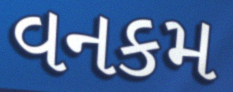
વનકમ